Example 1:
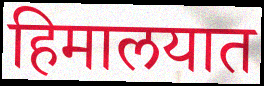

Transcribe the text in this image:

हिमालयात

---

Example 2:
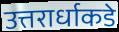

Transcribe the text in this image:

उत्तरार्धाकडे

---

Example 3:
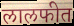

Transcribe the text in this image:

लालफीत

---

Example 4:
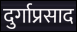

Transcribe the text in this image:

दुर्गाप्रसाद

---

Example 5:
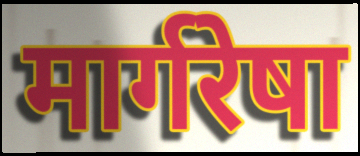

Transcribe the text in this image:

मार्गरेषा